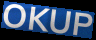
OKUP